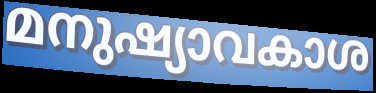
മനുഷ്യാവകാശ